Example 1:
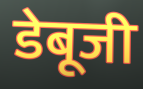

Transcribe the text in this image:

डेबूजी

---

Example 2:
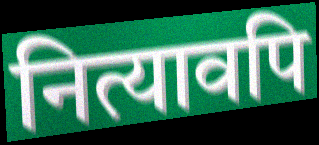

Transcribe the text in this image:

नित्यावपि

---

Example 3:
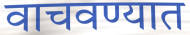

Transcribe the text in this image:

वाचवण्यात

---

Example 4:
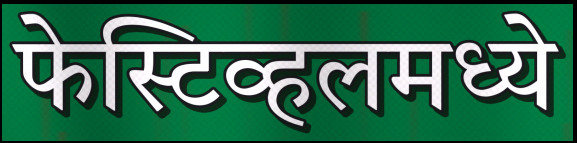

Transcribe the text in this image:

फेस्टिव्हलमध्ये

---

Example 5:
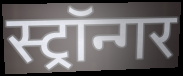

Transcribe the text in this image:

स्ट्रॉन्गर